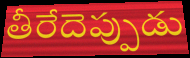
తీరేదెప్పుడు